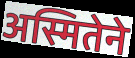
अस्मितेने